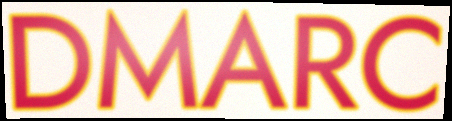
DMARC